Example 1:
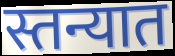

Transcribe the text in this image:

स्तन्यात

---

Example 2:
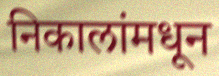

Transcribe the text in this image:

निकालांमधून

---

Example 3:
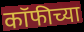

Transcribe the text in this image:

कॉफीच्या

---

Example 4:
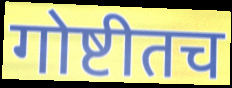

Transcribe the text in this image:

गोष्टीतच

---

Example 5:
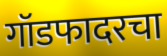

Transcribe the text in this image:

गॉडफादरचा